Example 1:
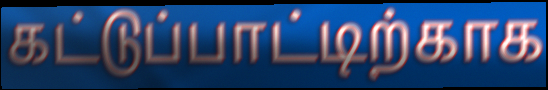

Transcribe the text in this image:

கட்டுப்பாட்டிற்காக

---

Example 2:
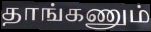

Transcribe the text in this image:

தாங்கணும்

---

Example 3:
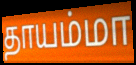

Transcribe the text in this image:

தாயம்மா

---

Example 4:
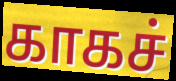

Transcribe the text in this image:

காகச்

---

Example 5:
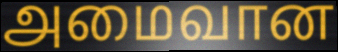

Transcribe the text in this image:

அமைவான